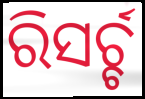
ରିସର୍ଚ୍ଚ